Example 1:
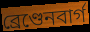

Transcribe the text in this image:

ব্ৰেণ্ডেনবাৰ্গ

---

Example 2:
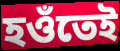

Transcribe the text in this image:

হওঁতেই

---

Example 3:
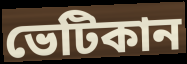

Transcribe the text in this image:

ভেটিকান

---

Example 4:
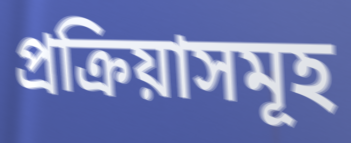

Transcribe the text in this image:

প্ৰক্ৰিয়াসমূহ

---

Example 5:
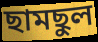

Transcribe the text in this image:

ছামছুল